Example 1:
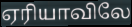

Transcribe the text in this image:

ஏரியாவிலே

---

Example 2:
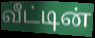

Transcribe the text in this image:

வீட்டின்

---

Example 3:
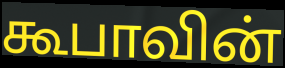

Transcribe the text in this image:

கூபாவின்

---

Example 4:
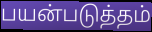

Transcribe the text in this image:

பயன்படுத்தம்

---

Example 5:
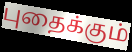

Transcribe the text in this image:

புதைக்கும்